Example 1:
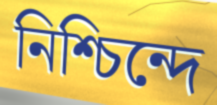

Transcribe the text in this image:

নিশ্চিন্দে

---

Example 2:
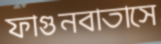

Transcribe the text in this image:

ফাগুনবাতাসে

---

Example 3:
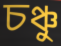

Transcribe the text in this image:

চঞ্চু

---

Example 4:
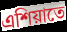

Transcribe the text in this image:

এশিয়াতে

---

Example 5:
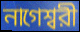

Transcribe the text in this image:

নাগেশ্বরী